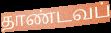
தாண்டவப்